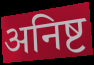
अनिष्ट